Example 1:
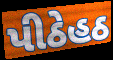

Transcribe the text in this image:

પીઠેહઠ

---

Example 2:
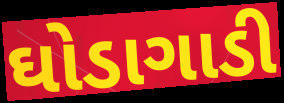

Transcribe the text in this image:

ઘોડાગાડી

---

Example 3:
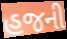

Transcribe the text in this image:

હજની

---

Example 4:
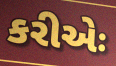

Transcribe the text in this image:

કરીએઃ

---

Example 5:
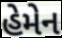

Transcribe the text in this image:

હેમેન